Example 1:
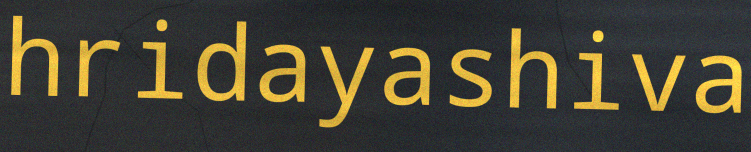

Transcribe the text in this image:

hridayashiva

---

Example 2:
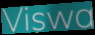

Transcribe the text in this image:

Viswa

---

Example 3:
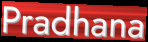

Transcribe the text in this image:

Pradhana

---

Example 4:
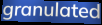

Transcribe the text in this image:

granulated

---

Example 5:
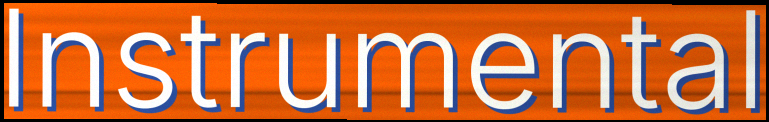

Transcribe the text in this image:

Instrumental